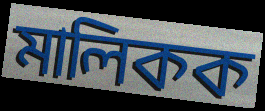
মালিকক